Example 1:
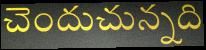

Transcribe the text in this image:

చెందుచున్నది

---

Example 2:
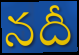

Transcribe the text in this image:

నదీ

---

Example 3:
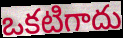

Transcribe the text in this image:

ఒకటిగాదు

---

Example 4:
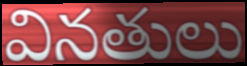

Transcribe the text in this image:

వినతులు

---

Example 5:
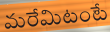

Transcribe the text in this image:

మరేమిటంటే